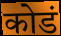
कोडं